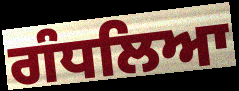
ਗੰਧਲਿਆ